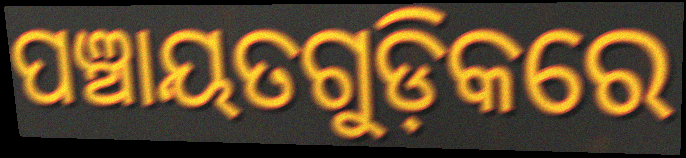
ପଞ୍ଚାୟତଗୁଡ଼ିକରେ